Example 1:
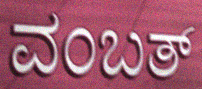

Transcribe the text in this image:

ವಂಬತ್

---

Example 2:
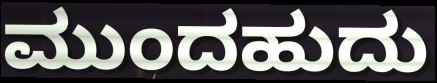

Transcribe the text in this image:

ಮುಂದಹುದು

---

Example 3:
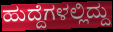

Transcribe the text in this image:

ಹುದ್ದೆಗಳಲ್ಲಿದ್ದು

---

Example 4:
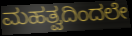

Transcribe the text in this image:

ಮಹತ್ವದಿಂದಲೇ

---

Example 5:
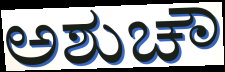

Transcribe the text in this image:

ಅಶುಚೌ